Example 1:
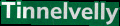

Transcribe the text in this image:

Tinnelvelly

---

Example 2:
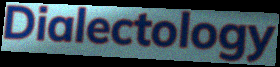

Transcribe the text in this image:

Dialectology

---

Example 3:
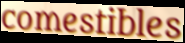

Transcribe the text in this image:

comestibles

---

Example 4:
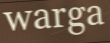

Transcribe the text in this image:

warga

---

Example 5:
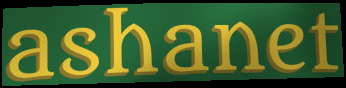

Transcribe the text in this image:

ashanet